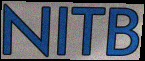
NITB